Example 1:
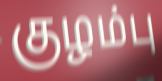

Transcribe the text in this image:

குழம்பு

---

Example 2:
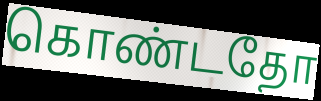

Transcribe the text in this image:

கொண்டதோ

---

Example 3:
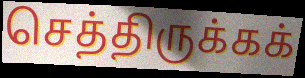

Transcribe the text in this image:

செத்திருக்கக்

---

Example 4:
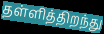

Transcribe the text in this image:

தள்ளித்திறந்து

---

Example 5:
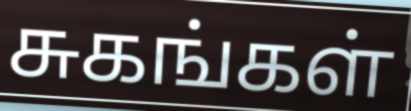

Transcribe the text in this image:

சுகங்கள்